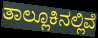
ತಾಲ್ಲೂಕಿನಲ್ಲಿವೆ